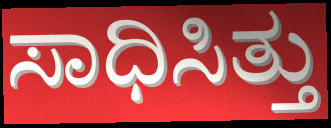
ಸಾಧಿಸಿತ್ತು